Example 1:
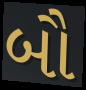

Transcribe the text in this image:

બૌ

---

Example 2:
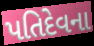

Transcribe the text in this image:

પતિદેવના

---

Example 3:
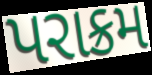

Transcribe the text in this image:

પરાક્રમ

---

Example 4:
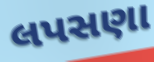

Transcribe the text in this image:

લપસણા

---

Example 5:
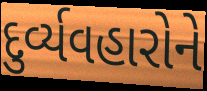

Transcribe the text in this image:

દુર્વ્યવહારોને